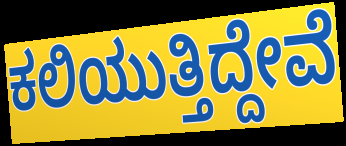
ಕಲಿಯುತ್ತಿದ್ದೇವೆ